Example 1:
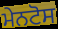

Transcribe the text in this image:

ਮੇਨਟੋਸ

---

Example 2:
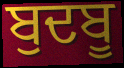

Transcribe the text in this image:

ਬੁਦਬੂ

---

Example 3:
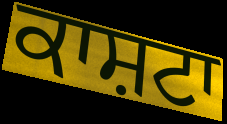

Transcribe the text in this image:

ਕਾਸ਼ਟਾ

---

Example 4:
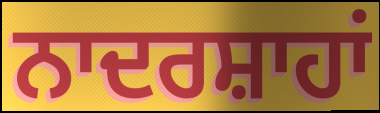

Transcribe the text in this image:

ਨਾਦਰਸ਼ਾਹਾਂ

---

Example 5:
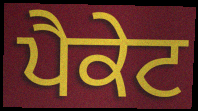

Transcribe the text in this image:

ਪੈਕੇਟ